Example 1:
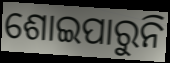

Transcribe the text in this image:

ଶୋଇପାରୁନି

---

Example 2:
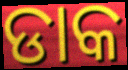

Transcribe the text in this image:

ଡାକ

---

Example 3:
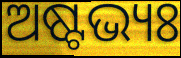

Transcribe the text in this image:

ଅଷ୍ଟଭ୍ୟଃ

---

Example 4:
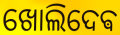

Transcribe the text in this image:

ଖୋଲିଦେଵ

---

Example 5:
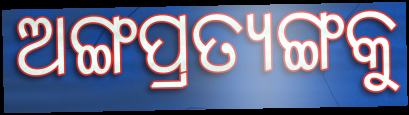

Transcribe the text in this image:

ଅଙ୍ଗପ୍ରତ୍ୟଙ୍ଗକୁ